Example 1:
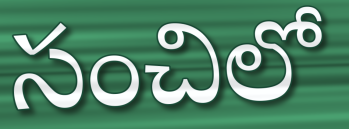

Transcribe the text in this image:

సంచిలో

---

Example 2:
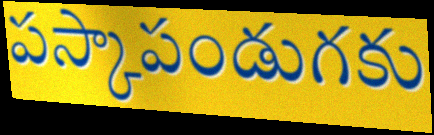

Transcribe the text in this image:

పస్కాపండుగకు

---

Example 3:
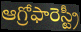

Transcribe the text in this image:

ఆగ్రోఫారెస్ట్రీ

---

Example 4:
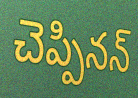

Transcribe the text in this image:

చెప్పినన్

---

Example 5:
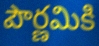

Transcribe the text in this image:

పౌర్ణమికి